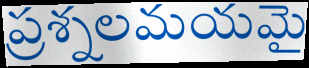
ప్రశ్నలమయమై